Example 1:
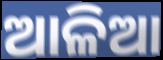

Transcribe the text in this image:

ଆଳିଆ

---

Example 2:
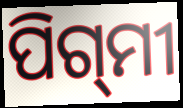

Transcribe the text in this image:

ପିଗ୍‌ମୀ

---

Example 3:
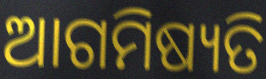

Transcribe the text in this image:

ଆଗମିଷ୍ୟତି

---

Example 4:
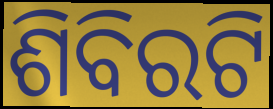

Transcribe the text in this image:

ଶିବିରଟି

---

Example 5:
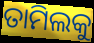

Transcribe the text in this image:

ତାମିଲକୁ